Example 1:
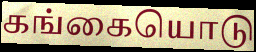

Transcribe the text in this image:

கங்கையொடு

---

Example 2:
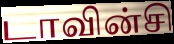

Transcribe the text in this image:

டாவின்சி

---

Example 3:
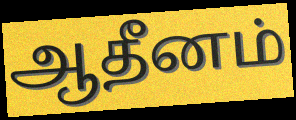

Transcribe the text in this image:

ஆதீனம்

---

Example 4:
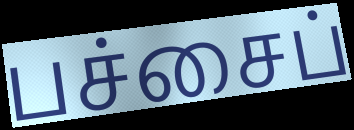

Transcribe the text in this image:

பச்சைப்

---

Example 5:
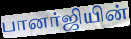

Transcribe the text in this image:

பானர்ஜியின்